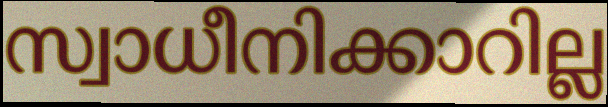
സ്വാധീനിക്കാറില്ല